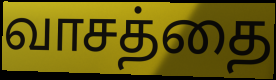
வாசத்தை